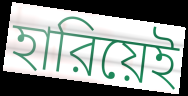
হারিয়েই